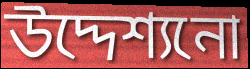
উদ্দেশ্যনো